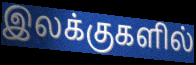
இலக்குகளில்